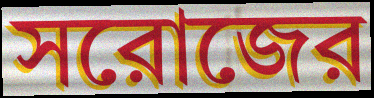
সরোজের